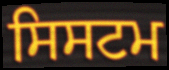
ਸਿਸਟਮ